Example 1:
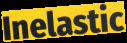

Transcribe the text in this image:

Inelastic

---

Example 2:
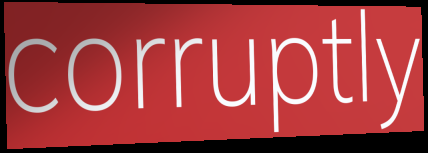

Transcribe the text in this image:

corruptly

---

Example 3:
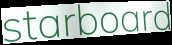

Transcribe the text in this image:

starboard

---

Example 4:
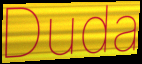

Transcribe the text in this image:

Duda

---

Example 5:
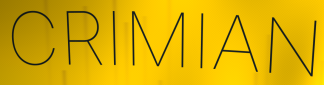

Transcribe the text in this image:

CRIMIAN